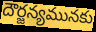
దౌర్జన్యమునకు